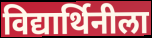
विद्यार्थिनीला